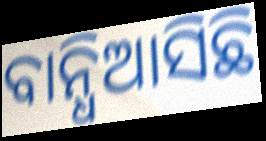
ବାନ୍ଧିଆସିଛି